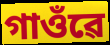
গাওঁৱে